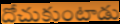
దోచుకుంటాడు